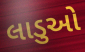
લાડુઓ